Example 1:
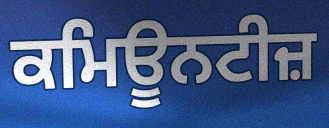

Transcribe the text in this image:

ਕਮਿਊਨਟੀਜ਼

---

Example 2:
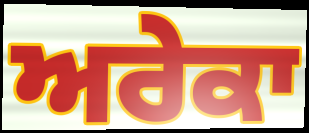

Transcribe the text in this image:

ਅਰੇਕਾ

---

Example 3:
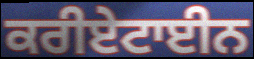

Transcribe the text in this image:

ਕਰੀਏਟਾਈਨ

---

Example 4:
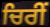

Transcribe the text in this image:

ਚਿਰੀਂ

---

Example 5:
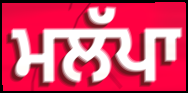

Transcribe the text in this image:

ਮਲੱਪਾ